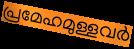
പ്രമേഹമുള്ളവർ